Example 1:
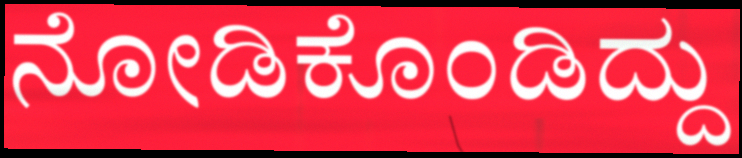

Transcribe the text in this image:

ನೋಡಿಕೊಂಡಿದ್ದು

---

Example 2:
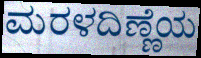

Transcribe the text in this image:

ಮರಳದಿಣ್ಣೆಯ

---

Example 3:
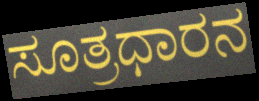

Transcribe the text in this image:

ಸೂತ್ರಧಾರನ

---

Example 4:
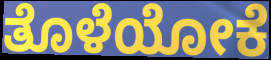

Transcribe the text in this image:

ತೊಳೆಯೋಕೆ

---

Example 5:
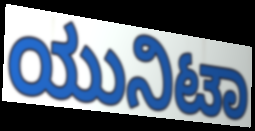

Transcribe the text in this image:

ಯುನಿಟಾ